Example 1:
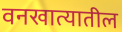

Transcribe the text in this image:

वनखात्यातील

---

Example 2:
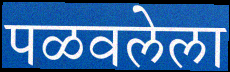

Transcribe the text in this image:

पळवलेला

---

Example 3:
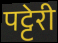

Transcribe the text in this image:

पट्टेरी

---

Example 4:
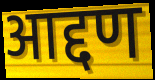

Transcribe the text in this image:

आद्दण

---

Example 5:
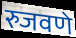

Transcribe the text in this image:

रुजवणे